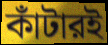
কাঁটারই